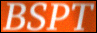
BSPT